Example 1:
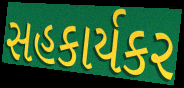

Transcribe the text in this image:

સહકાર્યકર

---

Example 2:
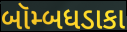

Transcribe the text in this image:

બૉમ્બધડાકા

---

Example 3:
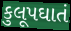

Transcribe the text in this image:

કુલૂપઘાતં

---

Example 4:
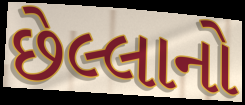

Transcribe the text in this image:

છેલ્લાનો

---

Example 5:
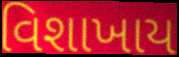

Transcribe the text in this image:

વિશાખાય